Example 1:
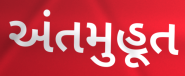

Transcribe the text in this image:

અંતમુહૂત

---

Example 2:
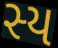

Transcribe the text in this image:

સ્ય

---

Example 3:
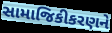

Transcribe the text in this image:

સામાજિકીકરણને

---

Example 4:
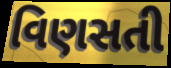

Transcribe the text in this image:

વિણસતી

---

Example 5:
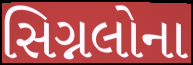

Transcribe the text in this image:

સિગ્નલોના